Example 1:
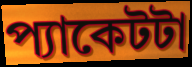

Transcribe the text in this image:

প্যাকেটটা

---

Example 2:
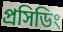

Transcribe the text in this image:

প্রসিডিং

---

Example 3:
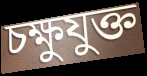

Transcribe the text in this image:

চক্ষুযুক্ত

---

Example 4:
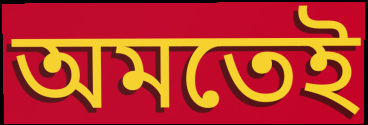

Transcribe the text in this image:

অমতেই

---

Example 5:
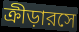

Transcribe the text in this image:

ক্রীড়ারসে